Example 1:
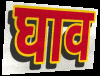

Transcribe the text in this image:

घाव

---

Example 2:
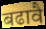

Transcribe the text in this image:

बढावै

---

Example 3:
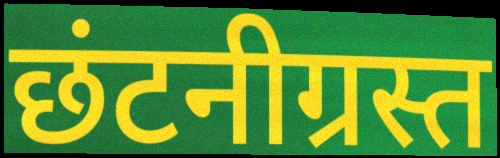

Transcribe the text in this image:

छंटनीग्रस्त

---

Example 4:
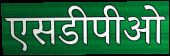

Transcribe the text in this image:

एसडीपीओ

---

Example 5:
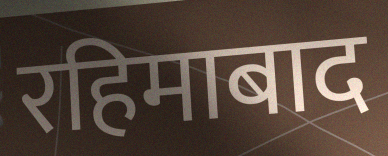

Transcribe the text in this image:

रहिमाबाद